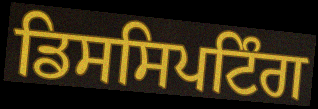
ਡਿਸਸਿਪਟਿੰਗ